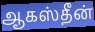
ஆகஸ்தீன்